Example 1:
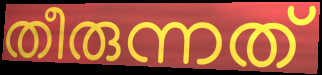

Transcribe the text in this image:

തീരുന്നത്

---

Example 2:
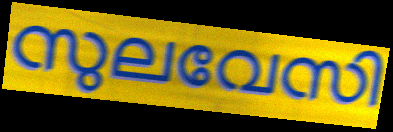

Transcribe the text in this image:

സുലവേസി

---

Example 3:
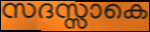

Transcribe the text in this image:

സദസ്സാകെ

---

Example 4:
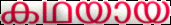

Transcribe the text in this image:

കഥയായ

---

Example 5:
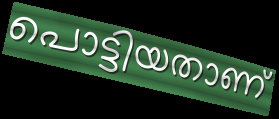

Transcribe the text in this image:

പൊട്ടിയതാണ്